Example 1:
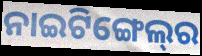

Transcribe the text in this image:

ନାଇଟିଙ୍ଗେଲ୍‌ର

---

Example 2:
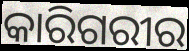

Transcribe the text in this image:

କାରିଗରୀର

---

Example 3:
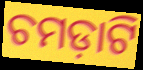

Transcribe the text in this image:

ଚମଡ଼ାଟି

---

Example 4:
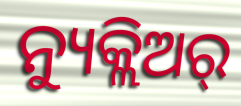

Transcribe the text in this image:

ନ୍ୟୁକ୍ଲିଅର୍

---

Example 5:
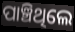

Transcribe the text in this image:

ପାଞ୍ଚିଥିଲେ